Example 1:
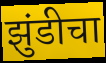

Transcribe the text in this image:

झुंडीचा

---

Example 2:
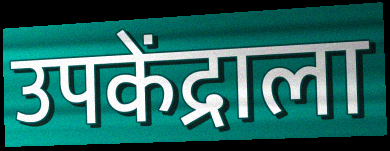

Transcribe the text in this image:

उपकेंद्राला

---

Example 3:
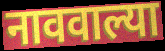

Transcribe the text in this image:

नाववाल्या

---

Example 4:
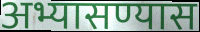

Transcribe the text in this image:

अभ्यासण्यास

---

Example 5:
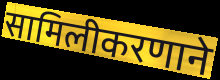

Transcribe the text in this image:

सामिलीकरणाने